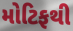
મોટિફથી